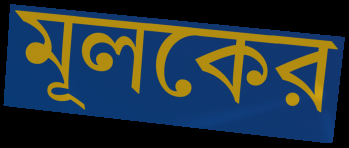
মূলকের